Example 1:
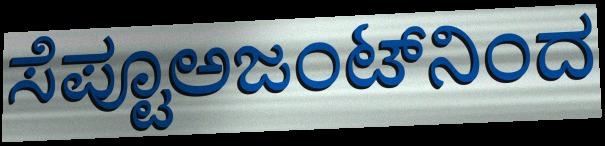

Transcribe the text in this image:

ಸೆಪ್ಟೂಅಜಂಟ್‌ನಿಂದ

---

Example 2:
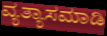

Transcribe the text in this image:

ವ್ಯತ್ಯಾಸಮಾಡಿ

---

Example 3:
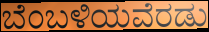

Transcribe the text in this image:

ಬೆಂಬಳಿಯವೆರಡು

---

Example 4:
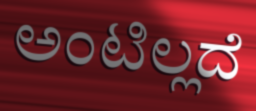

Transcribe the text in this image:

ಅಂಟಿಲ್ಲದೆ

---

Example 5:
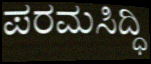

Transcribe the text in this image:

ಪರಮಸಿದ್ಧಿ